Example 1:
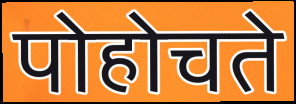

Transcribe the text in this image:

पोहोचते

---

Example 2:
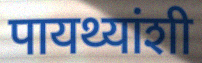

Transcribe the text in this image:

पायथ्यांशी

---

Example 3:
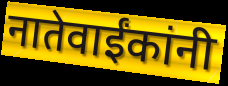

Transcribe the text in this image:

नातेवाईंकांनी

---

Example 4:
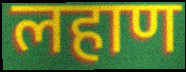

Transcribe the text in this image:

लहाण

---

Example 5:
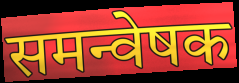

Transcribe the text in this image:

समन्वेषक